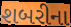
શબરીના